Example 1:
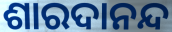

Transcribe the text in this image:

ଶାରଦାନନ୍ଦ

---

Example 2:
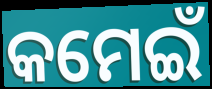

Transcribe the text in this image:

କମେଇଁ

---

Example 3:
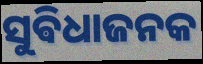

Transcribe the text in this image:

ସୁଵିଧାଜନକ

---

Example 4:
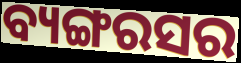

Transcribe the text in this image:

ବ୍ୟଙ୍ଗରସର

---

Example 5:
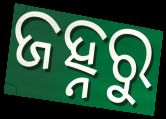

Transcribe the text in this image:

ଜହ୍ନରୁ